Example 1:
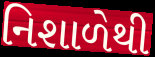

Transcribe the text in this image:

નિશાળેથી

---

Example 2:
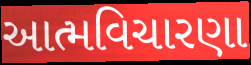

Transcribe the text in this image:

આત્મવિચારણા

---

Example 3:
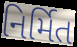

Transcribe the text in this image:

નિર્મિત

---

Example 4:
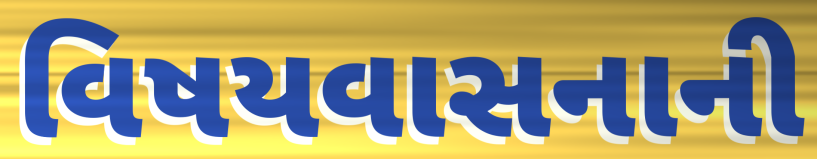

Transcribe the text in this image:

વિષયવાસનાની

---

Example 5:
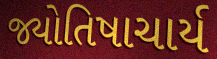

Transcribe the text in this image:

જ્યોતિષાચાર્ય